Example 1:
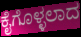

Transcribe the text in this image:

ಕೈಗೊಳ್ಳಲಾದ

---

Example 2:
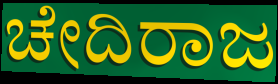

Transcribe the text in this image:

ಚೇದಿರಾಜ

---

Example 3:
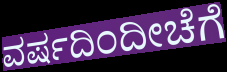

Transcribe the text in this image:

ವರ್ಷದಿಂದೀಚೆಗೆ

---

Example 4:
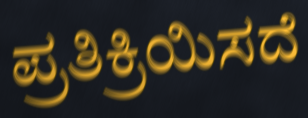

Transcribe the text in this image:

ಪ್ರತಿಕ್ರಿಯಿಸದೆ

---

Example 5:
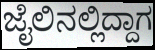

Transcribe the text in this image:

ಜೈಲಿನಲ್ಲಿದ್ದಾಗ